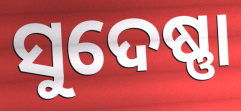
ସୁଦେଷ୍ଣା